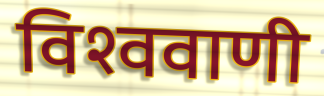
विश्ववाणी